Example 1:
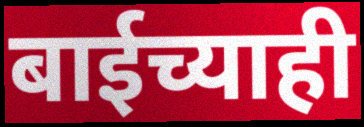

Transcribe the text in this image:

बाईच्याही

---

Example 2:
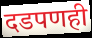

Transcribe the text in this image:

दडपणही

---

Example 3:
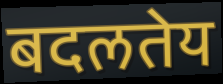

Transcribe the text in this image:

बदलतेय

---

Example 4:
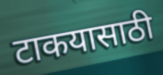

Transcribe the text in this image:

टाकयासाठी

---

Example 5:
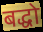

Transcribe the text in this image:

बद्धो